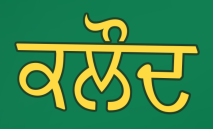
ਕਲੌਦ